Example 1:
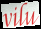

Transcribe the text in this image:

vilu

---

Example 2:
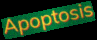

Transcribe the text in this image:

Apoptosis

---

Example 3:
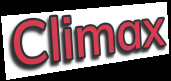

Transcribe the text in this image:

Climax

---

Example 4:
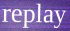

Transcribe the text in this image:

replay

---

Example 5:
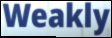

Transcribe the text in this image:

Weakly